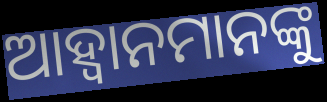
ଆହ୍ୱାନମାନଙ୍କୁ